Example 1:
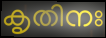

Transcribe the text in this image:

കൃതിനഃ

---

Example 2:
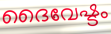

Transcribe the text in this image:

ദൈവേഷ്ടം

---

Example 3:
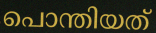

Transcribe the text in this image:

പൊന്തിയത്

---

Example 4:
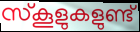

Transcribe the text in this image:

സ്കൂളുകളുണ്ട്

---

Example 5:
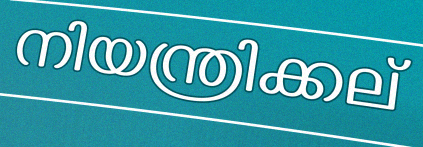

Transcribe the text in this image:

നിയന്ത്രിക്കല്